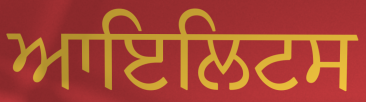
ਆਇਲਿਟਸ